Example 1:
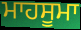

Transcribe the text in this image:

ਮਾਹਸੂਮਾ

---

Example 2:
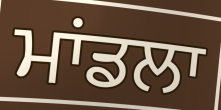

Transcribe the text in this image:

ਮਾਂਡਲਾ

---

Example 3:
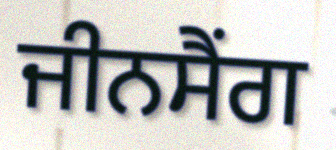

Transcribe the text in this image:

ਜੀਨਸੈਂਗ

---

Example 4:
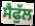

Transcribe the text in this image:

ਸੈਫੁੱਲ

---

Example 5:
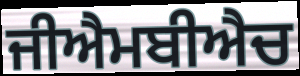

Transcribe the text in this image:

ਜੀਐਮਬੀਐਚ